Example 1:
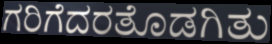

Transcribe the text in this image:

ಗರಿಗೆದರತೊಡಗಿತು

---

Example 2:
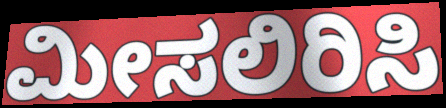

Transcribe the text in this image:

ಮೀಸಲಿರಿಸಿ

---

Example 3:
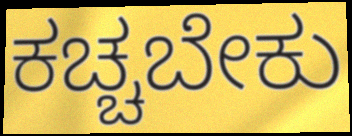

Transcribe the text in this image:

ಕಚ್ಚಬೇಕು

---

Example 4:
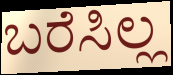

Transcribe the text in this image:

ಬರೆಸಿಲ್ಲ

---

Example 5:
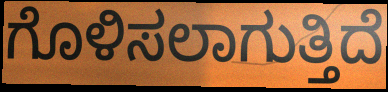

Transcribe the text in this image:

ಗೊಳಿಸಲಾಗುತ್ತಿದೆ